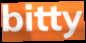
bitty